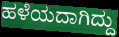
ಹಳೆಯದಾಗಿದ್ದು